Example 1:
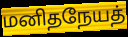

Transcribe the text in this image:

மனிதநேயத்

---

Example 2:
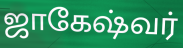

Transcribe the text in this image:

ஜாகேஷ்வர்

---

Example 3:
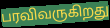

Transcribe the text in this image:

பரவிவருகிறது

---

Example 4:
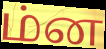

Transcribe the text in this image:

ம்ன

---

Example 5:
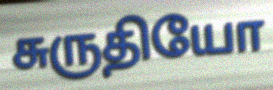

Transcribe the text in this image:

சுருதியோ